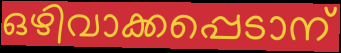
ഒഴിവാക്കപ്പെടാന്